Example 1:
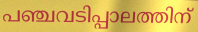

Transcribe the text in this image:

പഞ്ചവടിപ്പാലത്തിന്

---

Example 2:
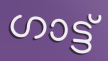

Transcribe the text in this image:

ഗാട്ട്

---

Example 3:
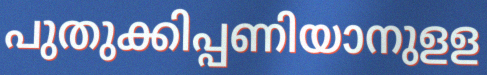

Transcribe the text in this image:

പുതുക്കിപ്പണിയാനുളള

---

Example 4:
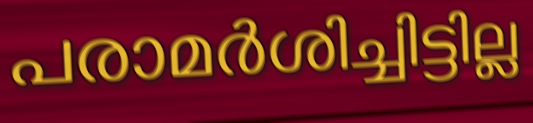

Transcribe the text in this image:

പരാമർശിച്ചിട്ടില്ല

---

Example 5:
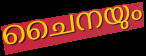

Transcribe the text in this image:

ചൈനയും